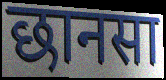
छानसा